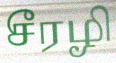
சீரழி